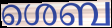
ശെബ